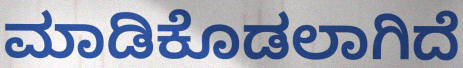
ಮಾಡಿಕೊಡಲಾಗಿದೆ